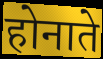
होनाते